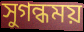
সুগন্ধময়